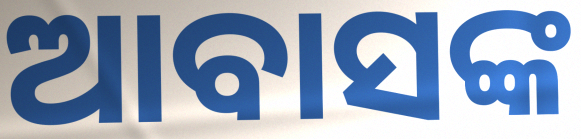
ଆବାସଙ୍କ